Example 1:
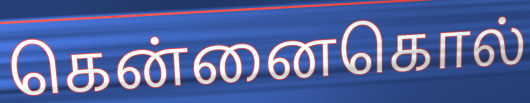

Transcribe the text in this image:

கென்னைகொல்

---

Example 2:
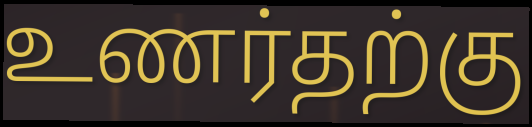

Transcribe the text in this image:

உணர்தற்கு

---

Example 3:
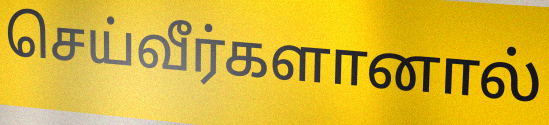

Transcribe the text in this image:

செய்வீர்களானால்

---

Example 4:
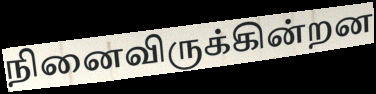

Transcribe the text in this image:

நினைவிருக்கின்றன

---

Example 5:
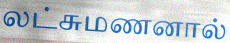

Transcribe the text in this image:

லட்சுமணனால்